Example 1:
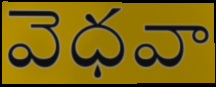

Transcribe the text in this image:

వెధవా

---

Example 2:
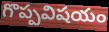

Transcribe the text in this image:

గొప్పవిషయం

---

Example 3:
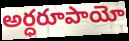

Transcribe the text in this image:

అర్ధరూపాయో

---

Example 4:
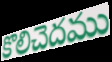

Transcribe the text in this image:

కొలిచెదము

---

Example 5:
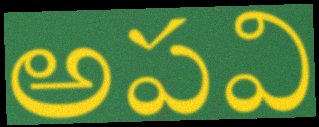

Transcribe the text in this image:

అపవి